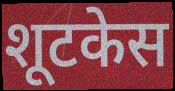
शूटकेस